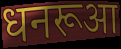
धनरूआ